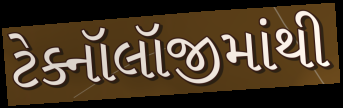
ટેક્નૉલૉજીમાંથી